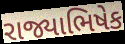
રાજ્યાભિષેક